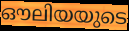
ഔലിയയുടെ